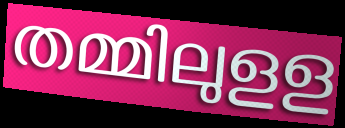
തമ്മിലുളള